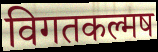
विगतकल्मष